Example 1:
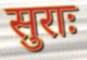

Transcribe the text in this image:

सुराः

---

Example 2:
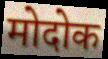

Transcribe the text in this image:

मोदोक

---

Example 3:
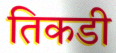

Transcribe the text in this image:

तिकडी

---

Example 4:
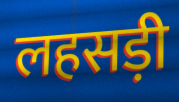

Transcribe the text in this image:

लहसड़ी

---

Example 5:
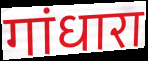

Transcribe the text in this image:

गांधारा